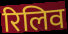
रिलिव